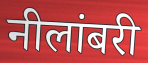
नीलांबरी